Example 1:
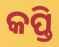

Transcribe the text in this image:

କପ୍ତି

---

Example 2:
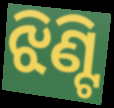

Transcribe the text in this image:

ଝିଣ୍ଟି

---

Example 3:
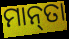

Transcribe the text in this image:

ମାନ୍‌ତା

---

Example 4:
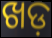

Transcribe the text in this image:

ଖଡ଼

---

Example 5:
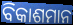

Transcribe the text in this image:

ବିକାଶମାନ